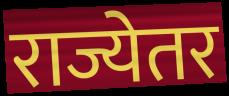
राज्येतर